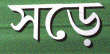
সড়ে